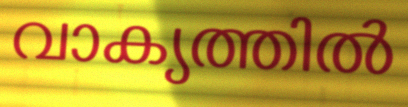
വാക്യത്തിൽ